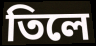
তিলে